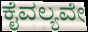
ಕೈವಲ್ಯವೇ